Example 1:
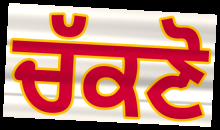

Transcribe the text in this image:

ਚੱਕਣੋ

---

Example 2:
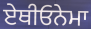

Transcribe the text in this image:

ਏਥੀਓਨੇਮਾ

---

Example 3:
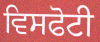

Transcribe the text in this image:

ਵਿਸਫੋਟੀ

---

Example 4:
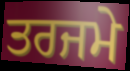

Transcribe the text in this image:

ਤਰਜਮੇ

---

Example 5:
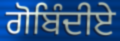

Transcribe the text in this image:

ਗੋਬਿੰਦੀਏ